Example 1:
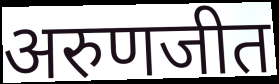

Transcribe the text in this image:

अरुणजीत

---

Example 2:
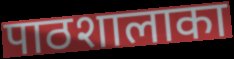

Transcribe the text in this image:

पाठशालाका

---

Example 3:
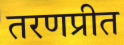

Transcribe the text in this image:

तरणप्रीत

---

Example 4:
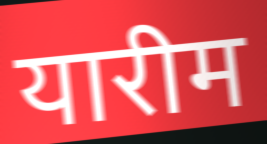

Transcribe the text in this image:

यारीम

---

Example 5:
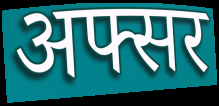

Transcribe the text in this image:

अफ्सर